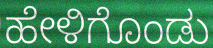
ಹೇಳಿಗೊಂಡು